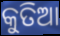
କୁତିଆ